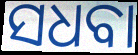
ସଧବା